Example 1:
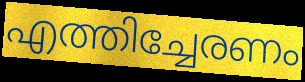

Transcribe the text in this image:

എത്തിച്ചേരണം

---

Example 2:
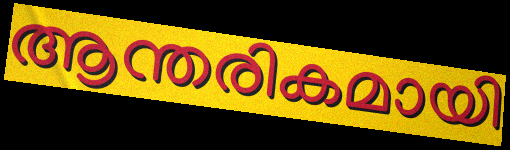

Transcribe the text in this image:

ആന്തരികമായി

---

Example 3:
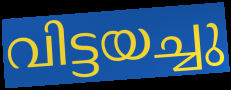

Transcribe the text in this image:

വിട്ടയച്ചു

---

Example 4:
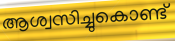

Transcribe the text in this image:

ആശ്വസിച്ചുകൊണ്ട്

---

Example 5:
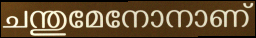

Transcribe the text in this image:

ചന്തുമേനോനാണ്